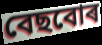
বেছবোৰ